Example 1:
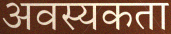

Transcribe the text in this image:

अवस्यकता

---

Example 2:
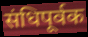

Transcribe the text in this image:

संधिपूर्वक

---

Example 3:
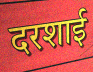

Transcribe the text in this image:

दरशाई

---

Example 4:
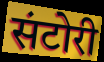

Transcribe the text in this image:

संटोरी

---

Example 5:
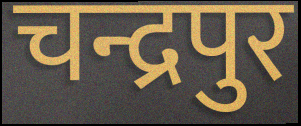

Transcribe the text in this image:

चन्द्रपुर